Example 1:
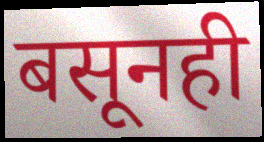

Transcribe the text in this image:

बसूनही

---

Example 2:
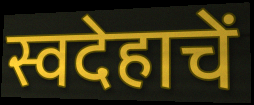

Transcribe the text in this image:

स्वदेहाचें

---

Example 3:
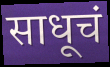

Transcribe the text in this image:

साधूचं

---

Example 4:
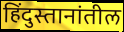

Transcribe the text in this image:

हिंदुस्तानांतील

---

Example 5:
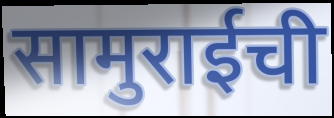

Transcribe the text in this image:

सामुराईची